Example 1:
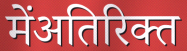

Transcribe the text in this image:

मेंअतिरिक्त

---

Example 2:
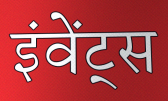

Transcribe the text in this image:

इंवेंट्स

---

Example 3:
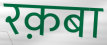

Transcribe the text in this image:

रक़बा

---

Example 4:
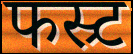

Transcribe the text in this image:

फस्र्ट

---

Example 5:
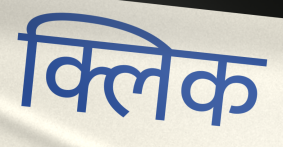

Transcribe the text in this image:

क्लिक